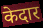
केदार